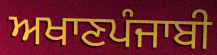
ਅਖਾਣਪੰਜਾਬੀ